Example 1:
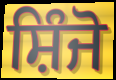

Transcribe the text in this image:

ਸ਼ਿੰਜੋ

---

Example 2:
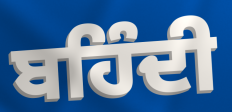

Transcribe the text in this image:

ਬਹਿੰਦੀ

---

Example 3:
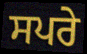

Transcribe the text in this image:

ਸਪਰੇ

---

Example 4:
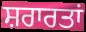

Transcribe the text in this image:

ਸ਼ਰਾਰਤਾਂ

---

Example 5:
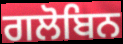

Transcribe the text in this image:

ਗਲੋਬਿਨ